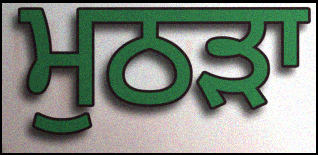
ਮੁਠੜਾ